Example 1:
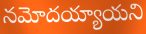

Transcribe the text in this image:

నమోదయ్యాయని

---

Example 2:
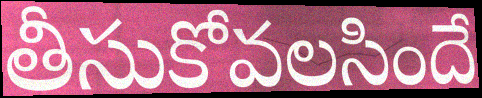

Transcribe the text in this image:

తీసుకోవలసిందే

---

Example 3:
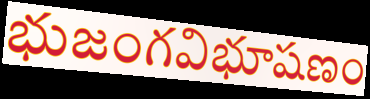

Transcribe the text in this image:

భుజంగవిభూషణం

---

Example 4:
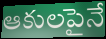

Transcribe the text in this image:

ఆకులపైనే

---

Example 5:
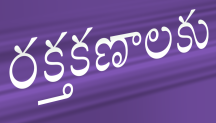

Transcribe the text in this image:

రక్తకణాలకు